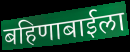
बहिणाबाईला